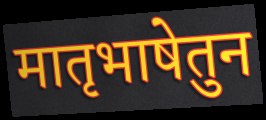
मातृभाषेतुन